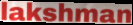
lakshman